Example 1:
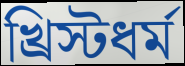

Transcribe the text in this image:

খ্রিস্টধর্ম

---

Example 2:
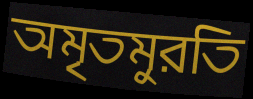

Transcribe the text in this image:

অমৃতমুরতি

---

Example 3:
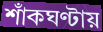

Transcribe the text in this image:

শাঁকঘণ্টায়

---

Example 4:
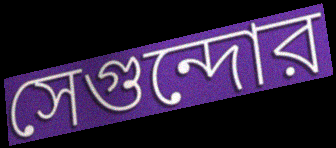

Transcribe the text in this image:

সেগুন্দোর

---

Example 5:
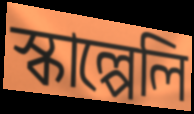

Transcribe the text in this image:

স্কাল্পেলি